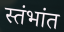
स्तंभांत